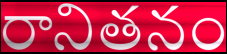
రానితనం